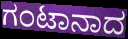
ಗಂಟಾನಾದ